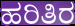
ಹರಿತಿರ